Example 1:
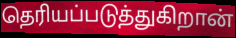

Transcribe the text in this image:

தெரியப்படுத்துகிறான்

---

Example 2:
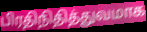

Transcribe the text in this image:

பிரதிநிதித்துவமாக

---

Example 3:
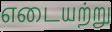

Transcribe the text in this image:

எடையற்று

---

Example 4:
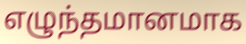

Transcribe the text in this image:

எழுந்தமானமாக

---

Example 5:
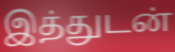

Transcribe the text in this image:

இத்துடன்